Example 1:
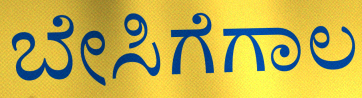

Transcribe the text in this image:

ಬೇಸಿಗೆಗಾಲ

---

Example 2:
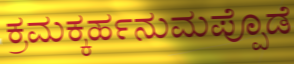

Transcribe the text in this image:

ಕ್ರಮಕ್ಕರ್ಹನುಮಪ್ಪೊಡೆ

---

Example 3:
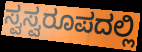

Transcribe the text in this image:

ಸ್ವಸ್ವರೂಪದಲ್ಲಿ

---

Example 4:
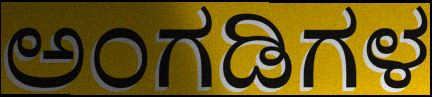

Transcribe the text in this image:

ಅಂಗಡಿಗಳ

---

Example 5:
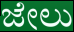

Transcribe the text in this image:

ಜೇಲು